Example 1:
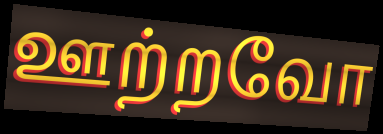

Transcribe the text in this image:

ஊற்றவோ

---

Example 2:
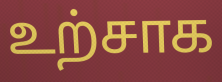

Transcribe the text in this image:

உற்சாக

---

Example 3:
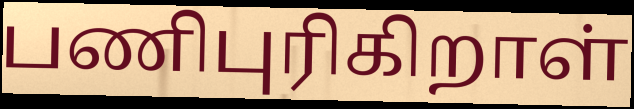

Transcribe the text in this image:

பணிபுரிகிறாள்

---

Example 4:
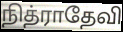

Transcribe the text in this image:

நித்ராதேவி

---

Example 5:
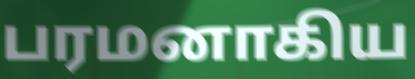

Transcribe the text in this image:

பரமனாகிய